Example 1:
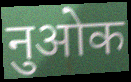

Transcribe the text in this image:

नुओक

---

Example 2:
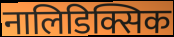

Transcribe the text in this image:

नालिडिक्सिक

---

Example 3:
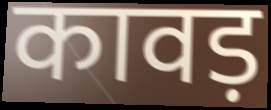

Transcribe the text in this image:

कावड़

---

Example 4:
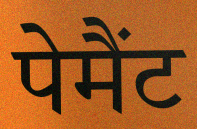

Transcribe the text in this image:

पेमैंट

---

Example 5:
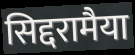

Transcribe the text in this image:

सिद्दरामैया